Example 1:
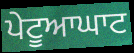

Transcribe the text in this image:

ਪੇਟੂਆਘਾਟ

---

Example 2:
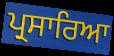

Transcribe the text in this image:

ਪ੍ਰਸਾਰਿਆ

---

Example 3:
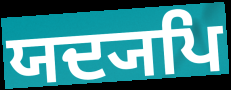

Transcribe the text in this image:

ਯਦ੍ਯਪਿ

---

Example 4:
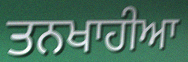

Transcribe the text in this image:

ਤਨਖਾਹੀਆ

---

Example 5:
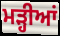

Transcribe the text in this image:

ਮੜ੍ਹੀਆਂ